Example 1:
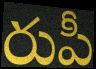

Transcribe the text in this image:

రుపీ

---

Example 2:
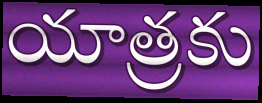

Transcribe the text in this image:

యాత్రకు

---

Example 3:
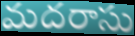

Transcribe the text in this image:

మదరాసు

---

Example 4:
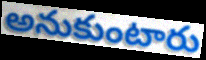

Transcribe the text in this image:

అనుకుంటారు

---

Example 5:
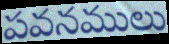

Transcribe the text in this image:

పవనములు